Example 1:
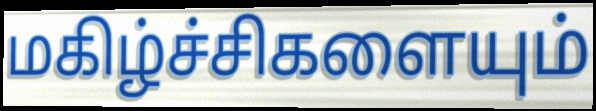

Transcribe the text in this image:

மகிழ்ச்சிகளையும்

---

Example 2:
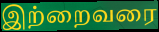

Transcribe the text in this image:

இற்றைவரை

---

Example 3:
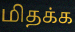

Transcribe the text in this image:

மிதக்க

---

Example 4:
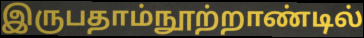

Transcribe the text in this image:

இருபதாம்நூற்றாண்டில்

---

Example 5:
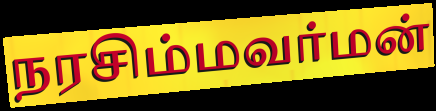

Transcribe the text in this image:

நரசிம்மவர்மன்